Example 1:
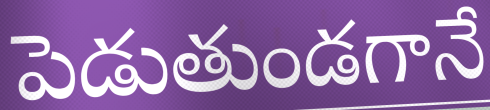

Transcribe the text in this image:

పెడుతుండగానే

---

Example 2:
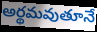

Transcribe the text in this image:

అర్థమవుతూనే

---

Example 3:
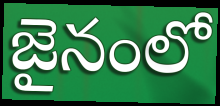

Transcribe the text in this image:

జైనంలో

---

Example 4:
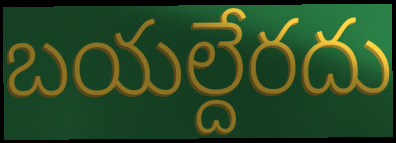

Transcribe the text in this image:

బయల్దేరదు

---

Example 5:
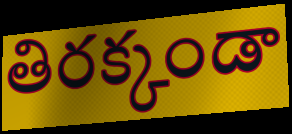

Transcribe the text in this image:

తిరక్కండా